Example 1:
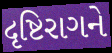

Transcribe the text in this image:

દૃષ્ટિરાગને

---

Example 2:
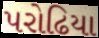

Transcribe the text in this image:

પરોઢિયા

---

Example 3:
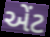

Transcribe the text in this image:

એંટ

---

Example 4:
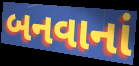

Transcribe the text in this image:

બનવાનાં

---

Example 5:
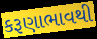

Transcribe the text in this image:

કરૂણાભાવથી